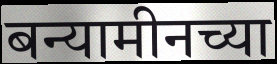
बन्यामीनच्या